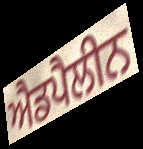
ਐਡਪੈਲੀਨ